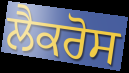
ਲੈਕਰੋਸ